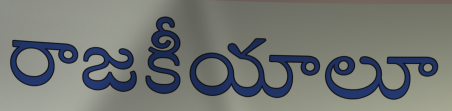
రాజకీయాలూ